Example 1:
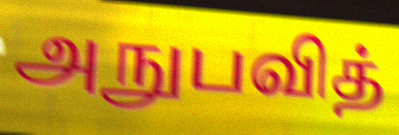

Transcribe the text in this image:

அநுபவித்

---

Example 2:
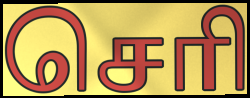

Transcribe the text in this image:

செரி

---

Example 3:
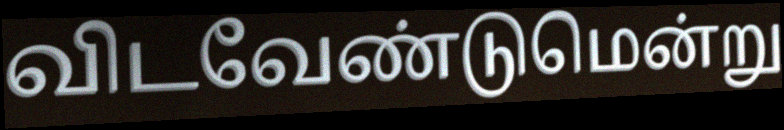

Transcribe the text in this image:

விடவேண்டுமென்று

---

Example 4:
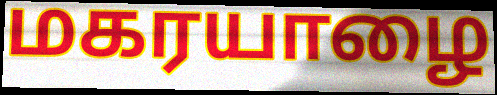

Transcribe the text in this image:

மகரயாழை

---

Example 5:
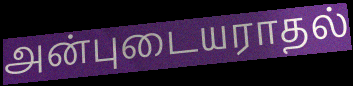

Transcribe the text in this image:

அன்புடையராதல்